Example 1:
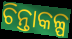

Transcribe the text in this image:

ଚିନ୍ତାକଳ୍ପ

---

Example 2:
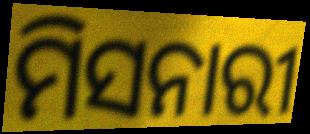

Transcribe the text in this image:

ମିସନାରୀ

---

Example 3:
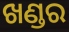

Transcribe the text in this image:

ଖଣ୍ଡର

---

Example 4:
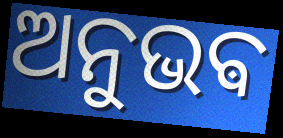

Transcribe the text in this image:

ଅନୁଭଵ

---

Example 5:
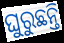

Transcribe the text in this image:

ଘୁରୁଛନ୍ତି